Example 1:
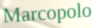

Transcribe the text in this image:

Marcopolo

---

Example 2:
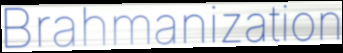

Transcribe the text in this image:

Brahmanization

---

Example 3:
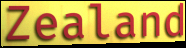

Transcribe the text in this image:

Zealand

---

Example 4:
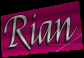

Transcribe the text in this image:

Rian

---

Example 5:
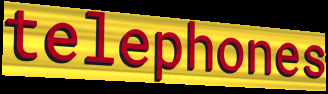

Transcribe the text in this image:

telephones